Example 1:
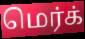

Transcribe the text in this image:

மெர்க்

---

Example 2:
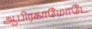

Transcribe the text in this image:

ஆபிரகாமோடே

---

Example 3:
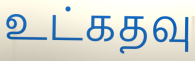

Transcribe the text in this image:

உட்கதவு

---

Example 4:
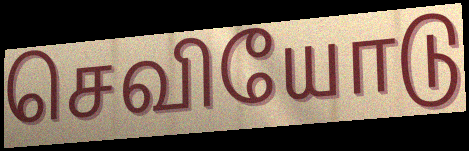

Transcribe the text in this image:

செவியோடு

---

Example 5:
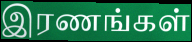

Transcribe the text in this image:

இரணங்கள்